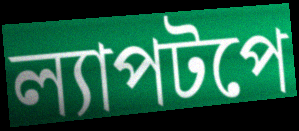
ল্যাপটপে